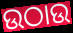
ଉଠାଉ